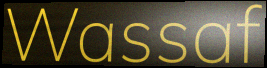
Wassaf